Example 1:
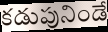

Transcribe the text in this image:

కడుపునిండే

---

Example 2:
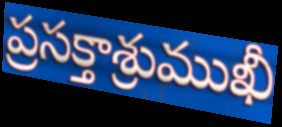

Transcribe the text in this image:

ప్రసక్తాశ్రుముఖీ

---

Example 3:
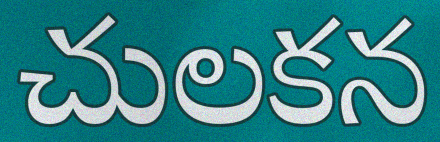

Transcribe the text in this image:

చులకన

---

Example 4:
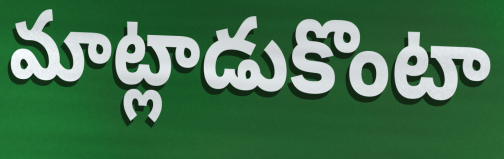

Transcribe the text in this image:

మాట్లాడుకొంటా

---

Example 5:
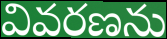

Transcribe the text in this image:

వివరణను